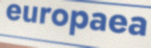
europaea